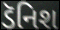
ડૅનિશ